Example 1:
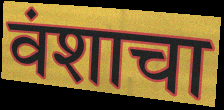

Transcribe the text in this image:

वंशाचा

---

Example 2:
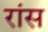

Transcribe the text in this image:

रांस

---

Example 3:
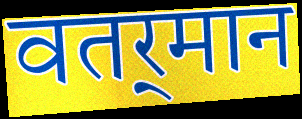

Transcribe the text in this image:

वतर्मान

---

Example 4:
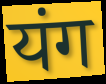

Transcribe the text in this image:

यंग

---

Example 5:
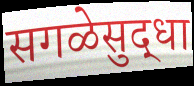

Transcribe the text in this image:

सगळेसुद्धा